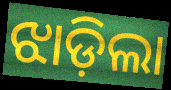
ଝାଡ଼ିଲା